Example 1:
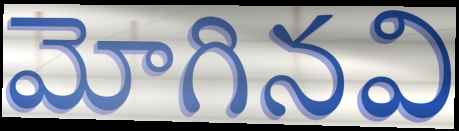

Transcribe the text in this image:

మోగినవి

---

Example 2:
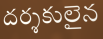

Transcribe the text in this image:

దర్శకులైన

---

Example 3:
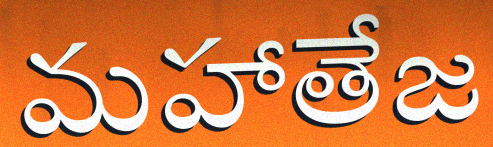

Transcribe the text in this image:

మహాతేజ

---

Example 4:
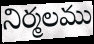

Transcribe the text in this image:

నిర్మలము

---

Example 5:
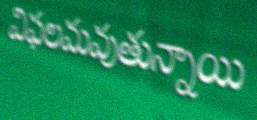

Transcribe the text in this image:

విఫలమవుతున్నాయి